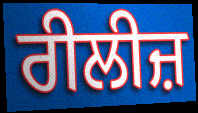
ਰੀਲੀਜ਼